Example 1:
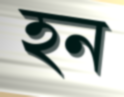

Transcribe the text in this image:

হন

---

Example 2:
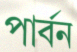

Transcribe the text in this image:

পাৰ্বন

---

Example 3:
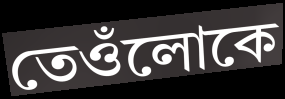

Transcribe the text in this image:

তেওঁলোকে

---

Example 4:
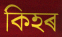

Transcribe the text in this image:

কিহৰ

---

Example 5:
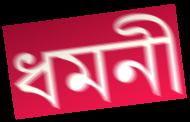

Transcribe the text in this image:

ধমনী